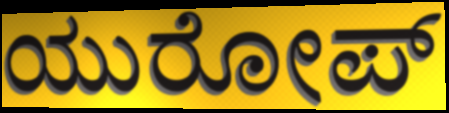
ಯುರೋಪ್